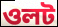
ওলট